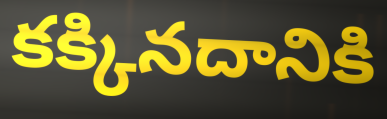
కక్కినదానికి